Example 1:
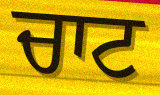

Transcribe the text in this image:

ਚਾਟ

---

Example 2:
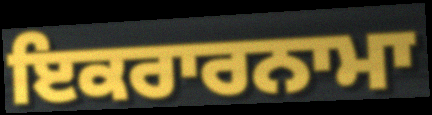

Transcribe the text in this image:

ਇਕਰਾਰਨਾਮਾ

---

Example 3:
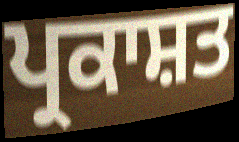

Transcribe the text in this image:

ਪ੍ਰਕਾਸ਼ਤ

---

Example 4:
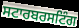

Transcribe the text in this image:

ਸਟਾਰਬਰਸਟਿੰਗ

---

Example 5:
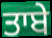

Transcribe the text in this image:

ਤਾਬੇ